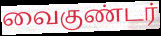
வைகுண்டர்